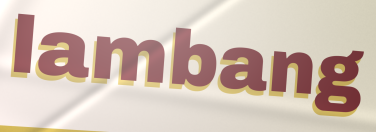
lambang